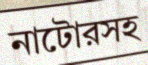
নাটোরসহ